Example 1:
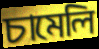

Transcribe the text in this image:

চামেলি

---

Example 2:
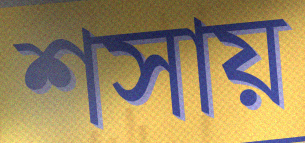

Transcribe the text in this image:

শসায়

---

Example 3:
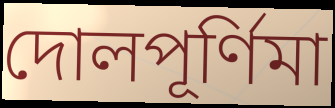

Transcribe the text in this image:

দোলপূর্ণিমা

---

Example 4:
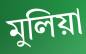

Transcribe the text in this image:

মুলিয়া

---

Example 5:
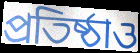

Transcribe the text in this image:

প্রতিষ্ঠাও